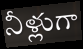
నీళ్లుగా